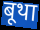
बूथा